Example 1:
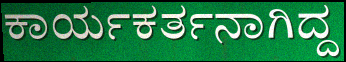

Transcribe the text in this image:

ಕಾರ್ಯಕರ್ತನಾಗಿದ್ದ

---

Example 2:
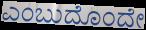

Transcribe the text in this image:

ಎಂಬುದೊಂದೇ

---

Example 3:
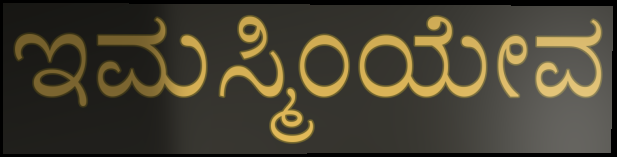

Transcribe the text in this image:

ಇಮಸ್ಮಿಂಯೇವ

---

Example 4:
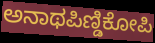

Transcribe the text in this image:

ಅನಾಥಪಿಣ್ಡಿಕೋಪಿ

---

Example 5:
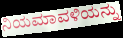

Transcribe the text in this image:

ನಿಯಮಾವಳಿಯನ್ನು